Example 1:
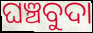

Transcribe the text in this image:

ଘଞ୍ଚବୁଦା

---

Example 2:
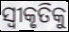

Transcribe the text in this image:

ସ୍ୱୀକୃତିକୁ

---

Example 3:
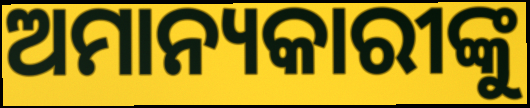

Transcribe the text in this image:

ଅମାନ୍ୟକାରୀଙ୍କୁ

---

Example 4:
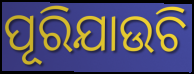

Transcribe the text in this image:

ପୂରିଯାଉଚି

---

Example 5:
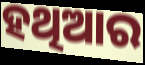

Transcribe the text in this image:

ହଥିଆର